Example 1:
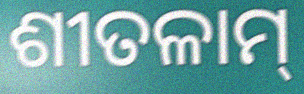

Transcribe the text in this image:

ଶୀତଳାମ୍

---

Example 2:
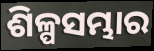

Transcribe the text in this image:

ଶିଳ୍ପସମ୍ଭାର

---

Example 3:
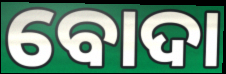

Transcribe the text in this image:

ବୋଦା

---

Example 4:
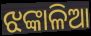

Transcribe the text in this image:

ଝଙ୍କାଳିଆ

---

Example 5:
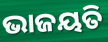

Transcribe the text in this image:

ଭାଜୟତି